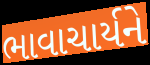
ભાવાચાર્યને